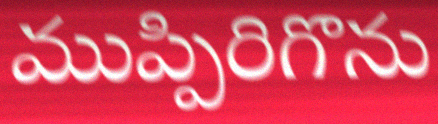
ముప్పిరిగొను